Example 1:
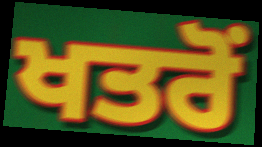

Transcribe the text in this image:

ਖਤਰੋਂ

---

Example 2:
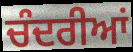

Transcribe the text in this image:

ਚੰਦਰੀਆਂ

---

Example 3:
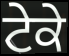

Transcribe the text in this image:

ਟੇਕੇ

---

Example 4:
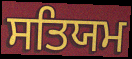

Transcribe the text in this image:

ਸਤਿਯਮ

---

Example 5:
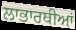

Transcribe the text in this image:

ਲਾਭਾਰਥੀਆਂ